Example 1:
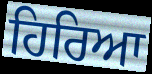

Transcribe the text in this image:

ਹਿਰਿਆ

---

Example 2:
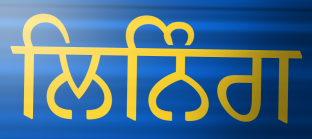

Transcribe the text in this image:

ਲਿਨਿੰਗ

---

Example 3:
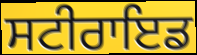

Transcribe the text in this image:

ਸਟੀਰਾਇਡ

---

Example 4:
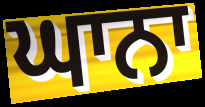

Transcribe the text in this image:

ਘਾਨਾ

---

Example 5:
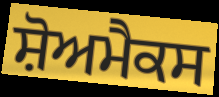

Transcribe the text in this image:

ਸ਼ੋਅਮੈਕਸ